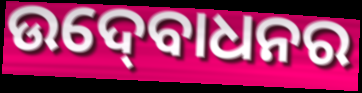
ଉଦ୍‍ବୋଧନର